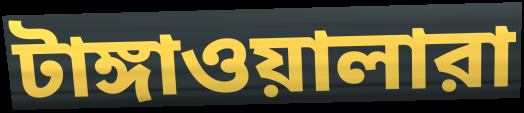
টাঙ্গাওয়ালারা